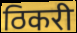
ठिकरी